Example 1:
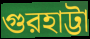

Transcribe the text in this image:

গুরহাট্টা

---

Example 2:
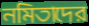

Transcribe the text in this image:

নমিতাদের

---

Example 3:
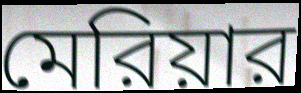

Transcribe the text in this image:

মেরিয়ার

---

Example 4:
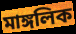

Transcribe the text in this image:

মাঙ্গলিক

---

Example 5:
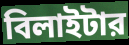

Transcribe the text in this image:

বিলাইটার